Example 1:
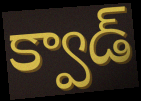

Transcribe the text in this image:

క్వాడ్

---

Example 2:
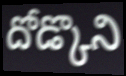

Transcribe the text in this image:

దోడ్కొని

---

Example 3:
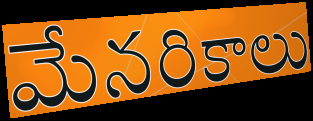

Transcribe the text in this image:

మేనరికాలు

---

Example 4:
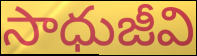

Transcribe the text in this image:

సాధుజీవి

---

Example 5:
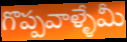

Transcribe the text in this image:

గొప్పవాళ్ళేమీ